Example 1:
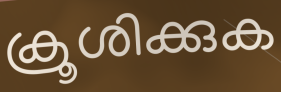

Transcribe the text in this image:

ക്രൂശിക്കുക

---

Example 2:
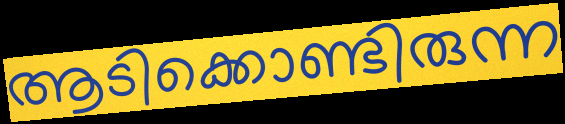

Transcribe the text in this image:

ആടിക്കൊണ്ടിരുന്ന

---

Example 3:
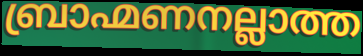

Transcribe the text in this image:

ബ്രാഹ്മണനല്ലാത്ത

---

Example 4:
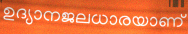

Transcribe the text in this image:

ഉദ്യാനജലധാരയാണ്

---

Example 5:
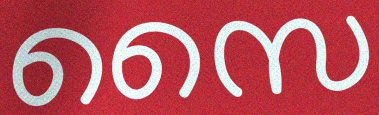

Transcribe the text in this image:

സൈ